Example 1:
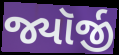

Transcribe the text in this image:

જ્યૉર્જી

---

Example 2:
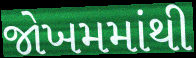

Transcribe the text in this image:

જોખમમાંથી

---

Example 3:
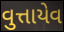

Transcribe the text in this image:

વુત્તાયેવ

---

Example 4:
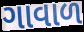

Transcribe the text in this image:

ગાવાળ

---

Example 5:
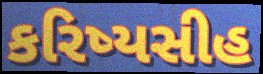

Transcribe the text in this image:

કરિષ્યસીહ